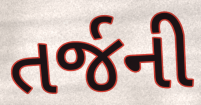
તર્જની